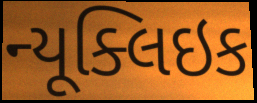
ન્યૂક્લિઇક